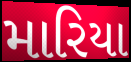
મારિયા